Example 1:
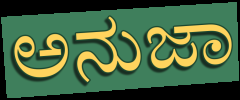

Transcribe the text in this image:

ಅನುಜಾ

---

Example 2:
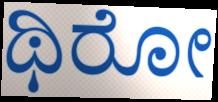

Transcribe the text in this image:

ಥಿರೋ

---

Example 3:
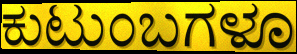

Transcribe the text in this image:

ಕುಟುಂಬಗಳೂ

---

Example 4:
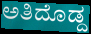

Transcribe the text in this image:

ಅತಿದೊಡ್ದ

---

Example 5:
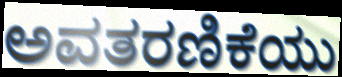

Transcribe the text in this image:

ಅವತರಣಿಕೆಯು